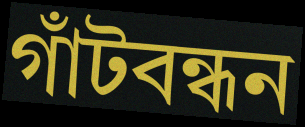
গাঁটবন্ধন